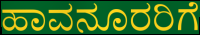
ಹಾವನೂರರಿಗೆ